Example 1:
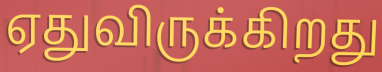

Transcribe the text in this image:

ஏதுவிருக்கிறது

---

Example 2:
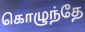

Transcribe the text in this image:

கொழுந்தே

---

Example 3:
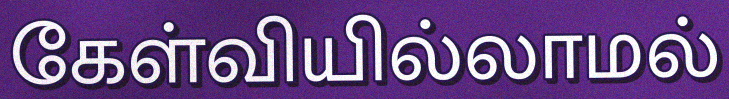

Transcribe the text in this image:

கேள்வியில்லாமல்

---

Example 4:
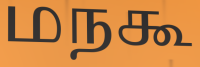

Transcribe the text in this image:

மநகூ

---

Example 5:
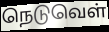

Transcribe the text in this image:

நெடுவெள்